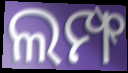
ଲମ୍ଫ